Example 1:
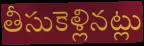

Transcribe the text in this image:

తీసుకెళ్లినట్లు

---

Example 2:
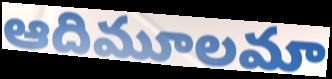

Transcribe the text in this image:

ఆదిమూలమా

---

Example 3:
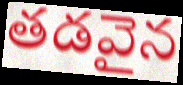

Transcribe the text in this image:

తడవైన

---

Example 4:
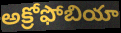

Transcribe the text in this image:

అక్రోఫోబియా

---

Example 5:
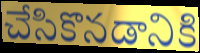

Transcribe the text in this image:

చేసికొనడానికి